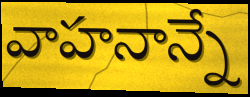
వాహనాన్నే